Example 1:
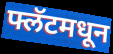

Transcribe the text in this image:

फ्लॅटमधून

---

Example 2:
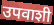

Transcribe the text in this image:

उपवाशी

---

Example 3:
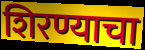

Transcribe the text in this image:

शिरण्याचा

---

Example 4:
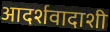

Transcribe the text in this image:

आदर्शवादाशी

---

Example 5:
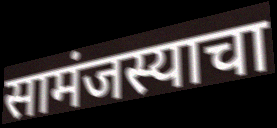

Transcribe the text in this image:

सामंजस्याचा